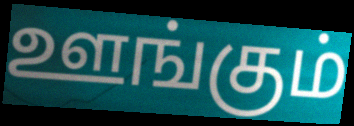
ஊங்கும்